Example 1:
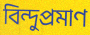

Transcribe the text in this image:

বিন্দুপ্রমাণ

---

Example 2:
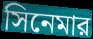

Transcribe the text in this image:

সিনেমার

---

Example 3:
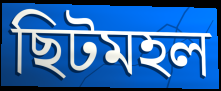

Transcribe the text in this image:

ছিটমহল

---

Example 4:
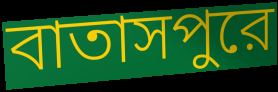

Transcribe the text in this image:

বাতাসপুরে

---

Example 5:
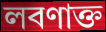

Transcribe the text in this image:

লবণাক্ত